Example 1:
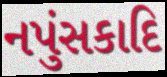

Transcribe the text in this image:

નપુંસકાદિ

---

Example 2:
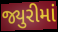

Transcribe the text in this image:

જ્યુરીમાં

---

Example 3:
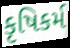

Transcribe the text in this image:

કૃષિકર્મ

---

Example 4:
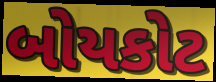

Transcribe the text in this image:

બોયકોટ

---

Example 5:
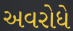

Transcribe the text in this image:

અવરોધે